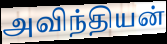
அவிந்தியன்